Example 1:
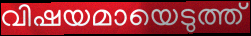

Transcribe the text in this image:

വിഷയമായെടുത്ത്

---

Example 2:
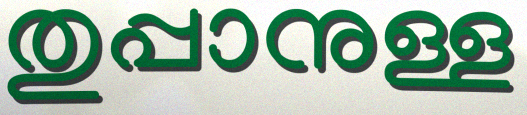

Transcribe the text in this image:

തുപ്പാനുള്ള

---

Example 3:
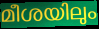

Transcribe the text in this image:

മീശയിലും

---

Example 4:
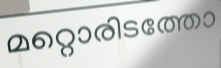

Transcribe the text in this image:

മറ്റൊരിടത്തോ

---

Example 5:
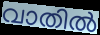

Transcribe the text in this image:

വാതിൽ